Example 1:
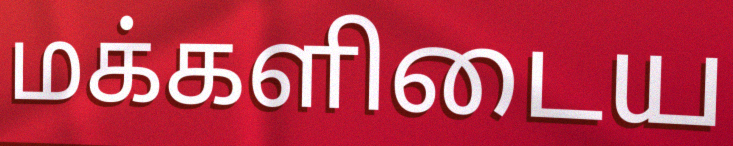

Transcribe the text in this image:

மக்களிடைய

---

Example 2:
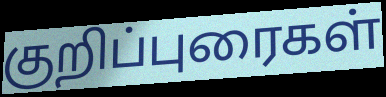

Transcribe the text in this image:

குறிப்புரைகள்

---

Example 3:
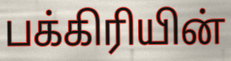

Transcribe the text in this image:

பக்கிரியின்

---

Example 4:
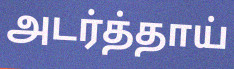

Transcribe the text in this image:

அடர்த்தாய்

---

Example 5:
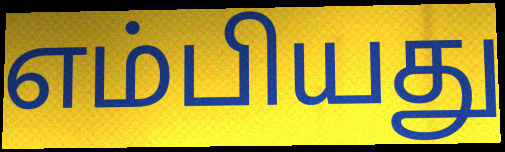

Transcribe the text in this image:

எம்பியது